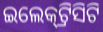
ଇଲେକ୍‌ଟ୍ରିସିଟି